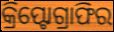
କ୍ରିପ୍ଟୋଗ୍ରାଫିର